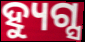
ହ୍ୟୁଗ୍ସ